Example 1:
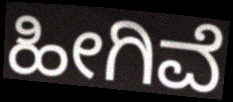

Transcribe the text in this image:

ಹೀಗಿವೆ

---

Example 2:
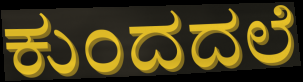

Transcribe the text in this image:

ಕುಂದದಲೆ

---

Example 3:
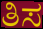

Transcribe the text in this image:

ತಿಸ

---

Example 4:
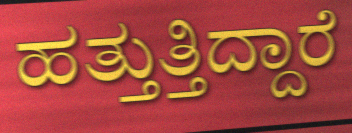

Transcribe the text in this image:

ಹತ್ತುತ್ತಿದ್ದಾರೆ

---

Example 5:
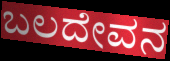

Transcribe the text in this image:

ಬಲದೇವನ